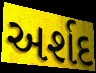
અર્શદ